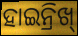
ହାଇନ୍ରିଖ୍